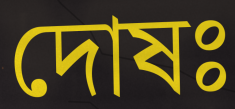
দোষঃ